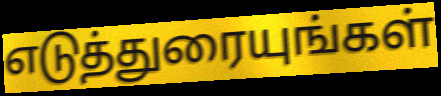
எடுத்துரையுங்கள்